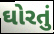
ઘોરતું